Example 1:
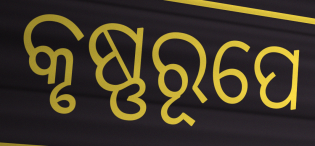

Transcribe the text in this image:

କୃଷ୍ଣରୂପେ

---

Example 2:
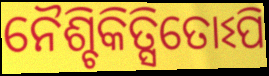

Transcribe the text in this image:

ନୈଶ୍ଚିକିତ୍ସିତୋଽପି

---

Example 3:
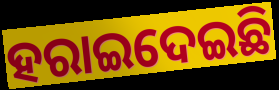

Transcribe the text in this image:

ହରାଇଦେଇଛି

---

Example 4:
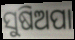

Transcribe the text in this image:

ସୁଷିଅପା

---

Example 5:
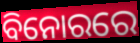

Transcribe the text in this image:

ବିନୋରରେ